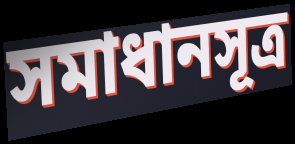
সমাধানসূত্ৰ